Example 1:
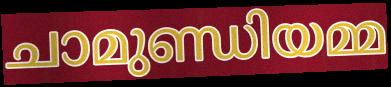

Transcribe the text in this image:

ചാമുണ്ഡിയമ്മ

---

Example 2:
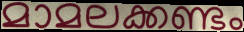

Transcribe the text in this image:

മാമലക്കണ്ടം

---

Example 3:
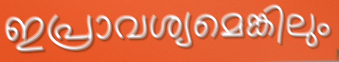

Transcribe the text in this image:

ഇപ്രാവശ്യമെങ്കിലും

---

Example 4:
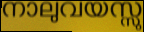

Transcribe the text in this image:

നാലുവയസ്സു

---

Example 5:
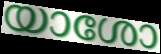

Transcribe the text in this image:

യാശോ